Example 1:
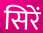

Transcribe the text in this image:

सिरें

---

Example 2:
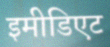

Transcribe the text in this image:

इमीडिएट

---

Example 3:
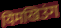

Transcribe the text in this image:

यिमखिउंग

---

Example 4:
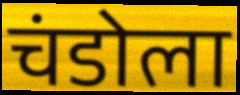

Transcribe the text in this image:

चंडोला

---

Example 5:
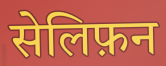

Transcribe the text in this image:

सेलिफ़न